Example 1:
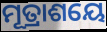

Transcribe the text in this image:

ମୂତ୍ରାଶୟେ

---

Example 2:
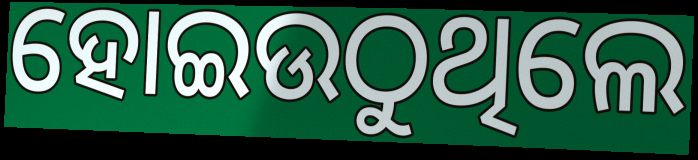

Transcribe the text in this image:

ହୋଇଉଠୁଥିଲେ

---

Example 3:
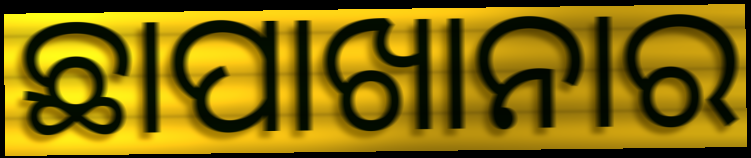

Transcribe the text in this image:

ଛାପାଖାନାର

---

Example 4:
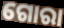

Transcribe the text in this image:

ଗୋରା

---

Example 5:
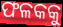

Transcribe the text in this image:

ଫଳକକୁ